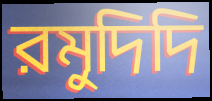
রমুদিদি